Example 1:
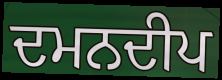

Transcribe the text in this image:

ਦਮਨਦੀਪ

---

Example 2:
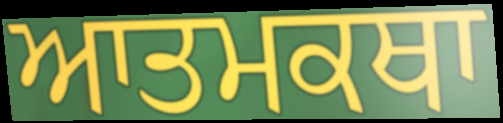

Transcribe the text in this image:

ਆਤਮਕਥਾ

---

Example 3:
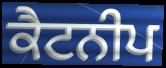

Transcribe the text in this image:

ਕੈਟਨੀਪ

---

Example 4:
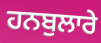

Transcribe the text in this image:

ਹਨਬੁਲਾਰੇ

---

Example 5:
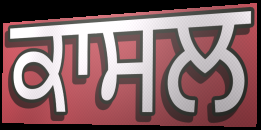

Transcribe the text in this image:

ਕਾਸਲ